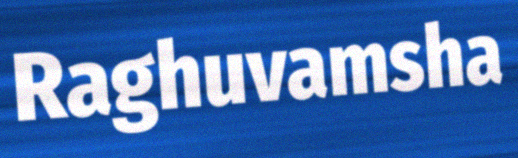
Raghuvamsha